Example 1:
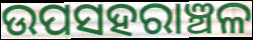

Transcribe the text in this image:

ଉପସହରାଞ୍ଚଳ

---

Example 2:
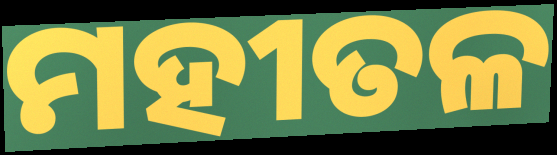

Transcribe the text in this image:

ମହୀତଳ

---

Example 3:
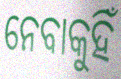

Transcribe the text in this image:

ନେବାକୁହିଁ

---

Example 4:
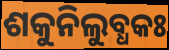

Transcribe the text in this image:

ଶକୁନିଲୁବ୍ଧକଃ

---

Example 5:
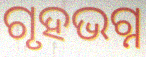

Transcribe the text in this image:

ଗୃହଭଗ୍ନ